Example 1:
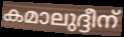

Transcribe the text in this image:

കമാലുദ്ദീന്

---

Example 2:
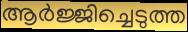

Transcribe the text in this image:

ആർജ്ജിച്ചെടുത്ത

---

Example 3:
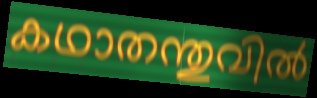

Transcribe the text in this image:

കഥാതന്തുവിൽ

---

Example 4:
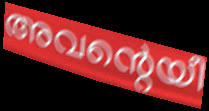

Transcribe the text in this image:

അവന്റെയീ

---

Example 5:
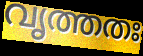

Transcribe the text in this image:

വൃത്തതഃ